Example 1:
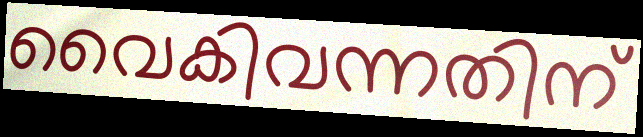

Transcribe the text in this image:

വൈകിവന്നതിന്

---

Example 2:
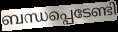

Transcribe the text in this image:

ബന്ധപ്പെടേണ്ടി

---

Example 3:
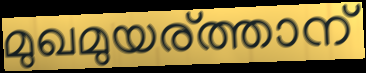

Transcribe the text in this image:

മുഖമുയര്ത്താന്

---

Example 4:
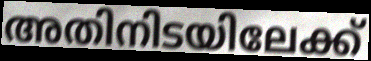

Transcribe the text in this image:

അതിനിടയിലേക്ക്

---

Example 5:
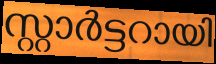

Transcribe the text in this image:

സ്റ്റാർട്ടറായി